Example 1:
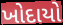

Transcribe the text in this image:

ખોદાયો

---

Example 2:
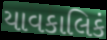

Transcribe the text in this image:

યાવકાલિકં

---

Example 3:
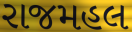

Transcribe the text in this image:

રાજમહલ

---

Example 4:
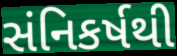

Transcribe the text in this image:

સંનિકર્ષથી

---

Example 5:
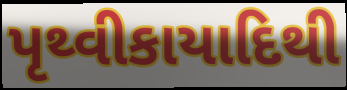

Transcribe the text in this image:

પૃથ્વીકાયાદિથી